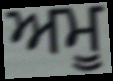
ਅਮੂ